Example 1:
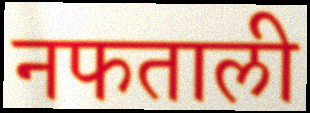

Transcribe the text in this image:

नफताली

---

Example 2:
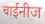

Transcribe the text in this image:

चाईनीज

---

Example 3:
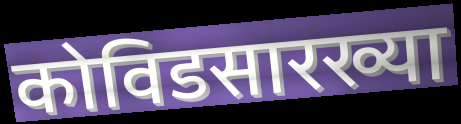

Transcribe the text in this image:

कोविडसारख्या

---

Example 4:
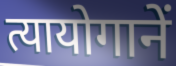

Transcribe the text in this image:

त्यायोगानें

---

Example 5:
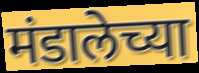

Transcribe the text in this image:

मंडालेच्या